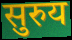
सुरुय